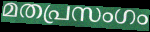
മതപ്രസംഗം